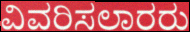
ವಿವರಿಸಲಾರರು